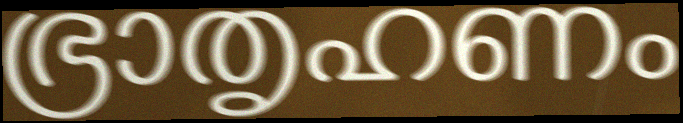
ഭ്രാതൃഹണം